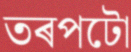
তৰপটো